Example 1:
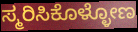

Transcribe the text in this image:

ಸ್ಮರಿಸಿಕೊಳ್ಳೋಣ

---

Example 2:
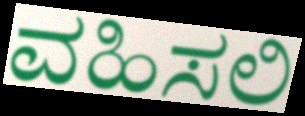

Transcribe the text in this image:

ವಹಿಸಲಿ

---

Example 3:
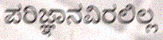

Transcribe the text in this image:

ಪರಿಜ್ಞಾನವಿರಲಿಲ್ಲ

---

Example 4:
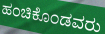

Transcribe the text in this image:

ಹಂಚಿಕೊಂಡವರು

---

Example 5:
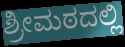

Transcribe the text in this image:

ಶ್ರೀಮಠದಲ್ಲಿ